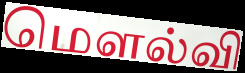
மௌல்வி